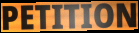
PETITION